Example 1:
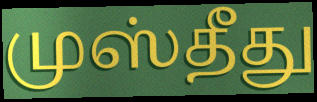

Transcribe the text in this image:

முஸ்தீது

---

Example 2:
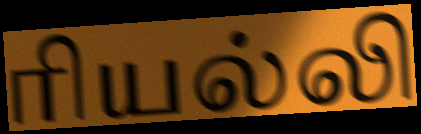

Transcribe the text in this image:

ரியல்லி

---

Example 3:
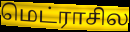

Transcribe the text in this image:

மெட்ராசில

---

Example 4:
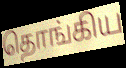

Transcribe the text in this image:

தொங்கிய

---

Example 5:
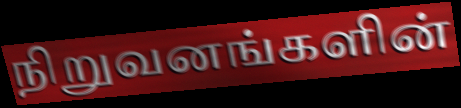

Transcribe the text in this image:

நிறுவனங்களின்